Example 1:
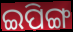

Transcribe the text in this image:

ଇପିଙ୍ଗ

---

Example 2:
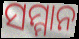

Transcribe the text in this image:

ସମ୍ମାନ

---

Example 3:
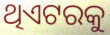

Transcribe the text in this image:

ଥିଏଟରକୁ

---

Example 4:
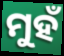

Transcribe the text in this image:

ମୁହଁ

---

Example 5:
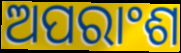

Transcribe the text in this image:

ଅପରାଂଶ